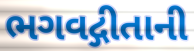
ભગવદ્ગીતાની